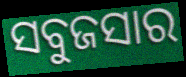
ସବୁଜସାର